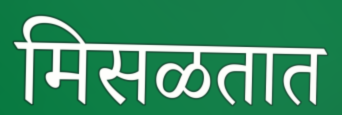
मिसळतात